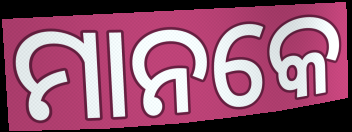
ମାନକେ